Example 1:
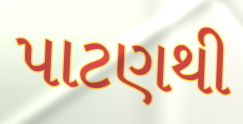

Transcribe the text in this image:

પાટણથી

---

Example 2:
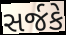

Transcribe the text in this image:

સર્જકે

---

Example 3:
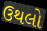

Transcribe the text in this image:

ઉથલો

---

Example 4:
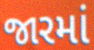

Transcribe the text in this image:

જારમાં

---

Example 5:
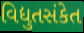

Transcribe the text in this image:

વિદ્યુતસંકેત